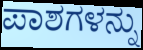
ಪಾಶಗಳನ್ನು